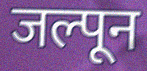
जल्पून